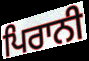
ਪਿਰਾਨੀ